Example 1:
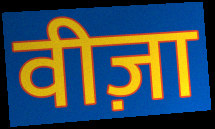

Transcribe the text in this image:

वीज़ा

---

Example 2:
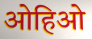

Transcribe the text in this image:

ओहिओ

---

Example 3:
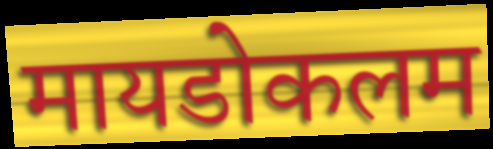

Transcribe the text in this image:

मायडोकलम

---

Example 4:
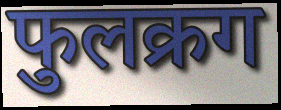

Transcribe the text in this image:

फुलक्रग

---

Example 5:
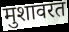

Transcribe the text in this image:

मुशावरत